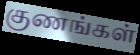
குணங்கள்